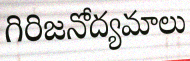
గిరిజనోద్యమాలు